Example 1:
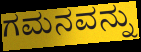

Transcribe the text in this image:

ಗಮನವನ್ನು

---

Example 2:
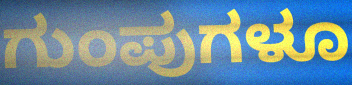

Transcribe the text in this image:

ಗುಂಪುಗಳೂ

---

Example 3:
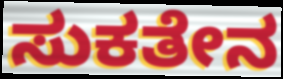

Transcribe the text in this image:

ಸುಕತೇನ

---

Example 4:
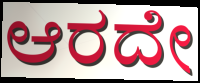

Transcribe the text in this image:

ಆರದೇ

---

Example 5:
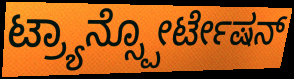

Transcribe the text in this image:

ಟ್ರ್ಯಾನ್ಸ್ಪೋರ್ಟೇಷನ್